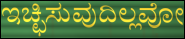
ಇಚ್ಛಿಸುವುದಿಲ್ಲವೋ